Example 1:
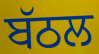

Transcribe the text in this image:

ਬੱਠਲ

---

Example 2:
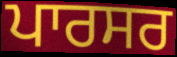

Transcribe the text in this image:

ਪਾਰਸਰ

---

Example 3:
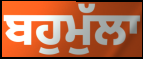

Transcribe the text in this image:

ਬਹੁਮੁੱਲਾ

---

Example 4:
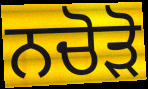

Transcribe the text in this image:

ਨਚੋੜੋ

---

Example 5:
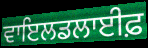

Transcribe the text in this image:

ਵਾਇਲਡਲਾਈਫ਼